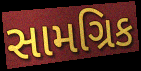
સામગ્રિક